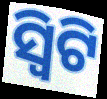
ସ୍ୱିଟି